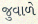
જુવાળે